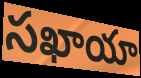
సఖాయా